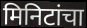
मिनिटांचा